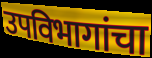
उपविभागांचा